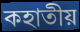
কহাতীয়